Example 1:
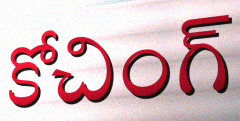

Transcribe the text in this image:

కోచింగ్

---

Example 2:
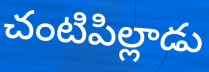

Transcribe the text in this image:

చంటిపిల్లాడు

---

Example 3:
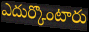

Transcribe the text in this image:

ఎదుర్కొంటారు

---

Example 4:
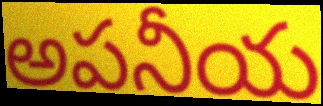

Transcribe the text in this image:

అపనీయ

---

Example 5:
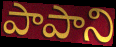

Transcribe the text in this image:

పాపాని